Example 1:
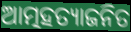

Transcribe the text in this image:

ଆତ୍ମହତ୍ୟାଜନିତ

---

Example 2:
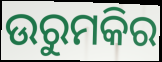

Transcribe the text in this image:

ଉରୁମକିର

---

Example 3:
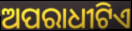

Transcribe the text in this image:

ଅପରାଧୀଟିଏ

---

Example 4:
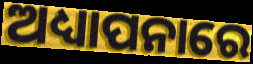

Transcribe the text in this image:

ଅଧ୍ୟାପନାରେ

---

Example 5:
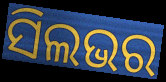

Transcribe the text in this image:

ସିଲଭର